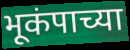
भूकंपाच्या